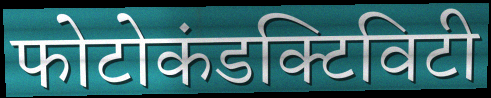
फोटोकंडक्टिविटी